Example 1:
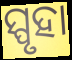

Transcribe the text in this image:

ସ୍ପୃହା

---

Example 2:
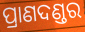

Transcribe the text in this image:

ପ୍ରାଣଦଣ୍ଡର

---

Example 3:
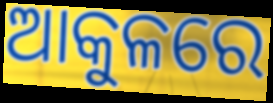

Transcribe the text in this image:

ଆକୁଳରେ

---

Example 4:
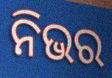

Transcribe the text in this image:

ନିଭର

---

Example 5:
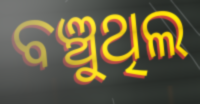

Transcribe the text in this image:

ବଞ୍ଚୁଥିଲ